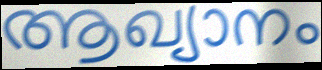
ആഖ്യാനം